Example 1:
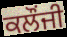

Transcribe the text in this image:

ਕਲੌਂਜੀ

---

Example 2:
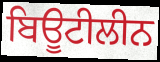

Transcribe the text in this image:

ਬਿਊਟੀਲੀਨ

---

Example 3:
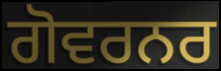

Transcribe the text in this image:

ਗੋਵਰਨਰ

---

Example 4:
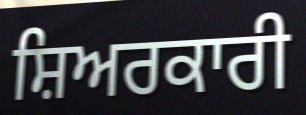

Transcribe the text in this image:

ਸ਼ਿਅਰਕਾਰੀ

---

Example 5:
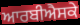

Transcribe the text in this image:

ਆਰਬੀਐਸਕੇ